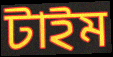
টাইম